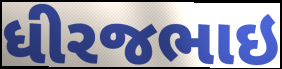
ધીરજભાઇ